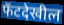
फॅटदेखील